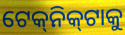
ଟେକ୍‌ନିକ୍‌ଟାକୁ